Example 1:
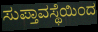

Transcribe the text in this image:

ಸುಪ್ತಾವಸ್ಥೆಯಿಂದ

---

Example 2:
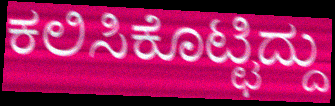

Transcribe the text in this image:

ಕಲಿಸಿಕೊಟ್ಟಿದ್ದು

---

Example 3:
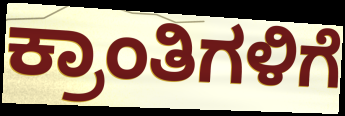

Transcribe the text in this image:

ಕ್ರಾಂತಿಗಳಿಗೆ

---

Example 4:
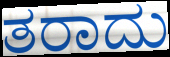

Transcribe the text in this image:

ತರಾದು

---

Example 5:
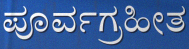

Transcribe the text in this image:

ಪೂರ್ವಗ್ರಹೀತ